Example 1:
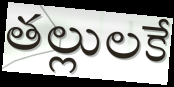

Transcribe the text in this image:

తల్లులకే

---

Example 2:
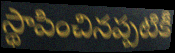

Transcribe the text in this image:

స్థాపించినప్పటికీ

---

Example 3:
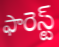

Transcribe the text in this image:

ఫారెస్ట్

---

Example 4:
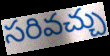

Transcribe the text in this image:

సరివచ్చు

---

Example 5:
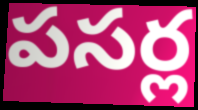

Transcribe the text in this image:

పసర్ల